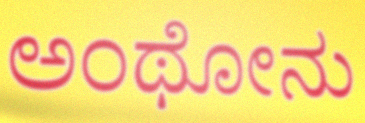
ಅಂಥೋನು